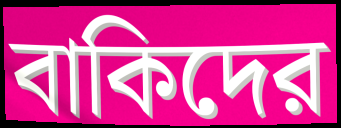
বাকিদের